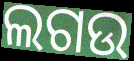
ଲଗଉ